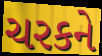
ચરકને